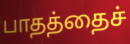
பாதத்தைச்